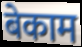
बेकाम